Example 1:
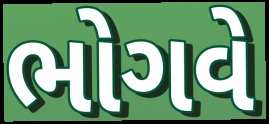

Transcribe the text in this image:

ભોગવે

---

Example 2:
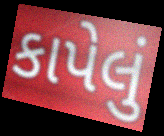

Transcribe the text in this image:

કાપેલું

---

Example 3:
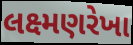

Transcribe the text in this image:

લક્ષ્મણરેખા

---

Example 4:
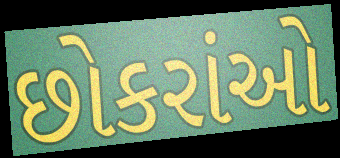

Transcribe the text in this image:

છોકરાંઓ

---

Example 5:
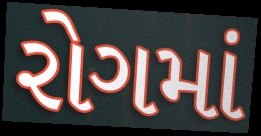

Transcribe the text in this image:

રોગમાં